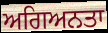
ਅਗਿਅਨਤਾ